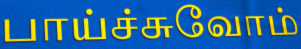
பாய்ச்சுவோம்